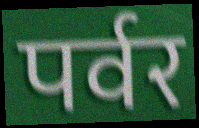
पर्वर